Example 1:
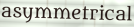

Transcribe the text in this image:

asymmetrical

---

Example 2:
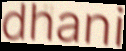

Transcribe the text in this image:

dhani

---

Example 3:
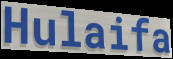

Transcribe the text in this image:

Hulaifa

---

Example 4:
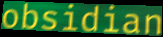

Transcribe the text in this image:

obsidian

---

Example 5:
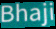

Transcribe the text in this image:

Bhaji